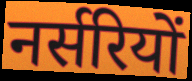
नर्सरियों